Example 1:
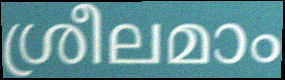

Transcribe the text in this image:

ശ്രീലമാം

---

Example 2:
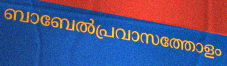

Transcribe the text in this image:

ബാബേൽപ്രവാസത്തോളം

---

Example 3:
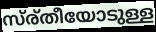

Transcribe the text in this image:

സ്ര്തീയോടുള്ള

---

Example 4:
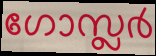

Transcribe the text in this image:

ഗോസ്ലർ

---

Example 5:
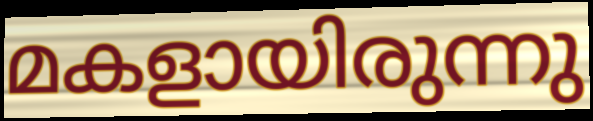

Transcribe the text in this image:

മകളായിരുന്നു